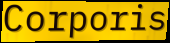
Corporis